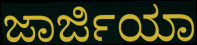
ಜಾರ್ಜಿಯಾ